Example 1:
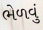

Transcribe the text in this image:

ભેળવું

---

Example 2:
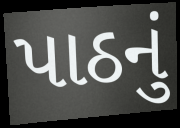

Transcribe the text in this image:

પાઠનું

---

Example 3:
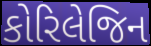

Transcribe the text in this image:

કોરિલેજિન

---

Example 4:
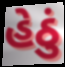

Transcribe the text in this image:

હેઠું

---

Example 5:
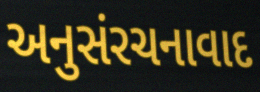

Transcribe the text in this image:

અનુસંરચનાવાદ